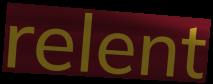
relent